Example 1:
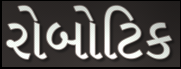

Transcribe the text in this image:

રોબોટિક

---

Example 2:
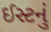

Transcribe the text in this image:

ઈસ્ટનું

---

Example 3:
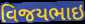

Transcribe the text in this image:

વિજયભાઇ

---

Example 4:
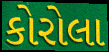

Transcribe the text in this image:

કોરોલા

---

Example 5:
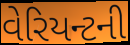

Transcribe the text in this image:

વેરિયન્ટની